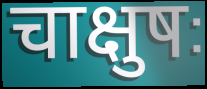
चाक्षुषः